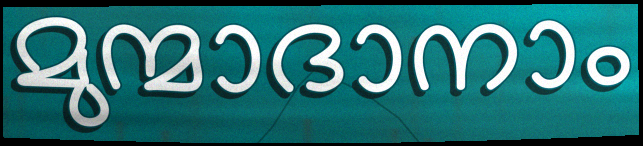
മുന്മാദാനാം